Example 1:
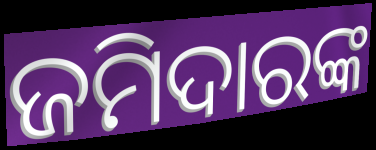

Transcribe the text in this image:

ଜମିଦାରଙ୍କ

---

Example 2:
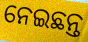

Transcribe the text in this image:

ନେଇଛନ୍ତ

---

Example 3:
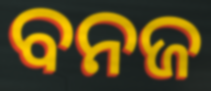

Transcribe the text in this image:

ବନଜ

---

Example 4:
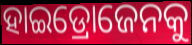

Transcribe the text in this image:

ହାଇଡ୍ରୋଜେନକୁ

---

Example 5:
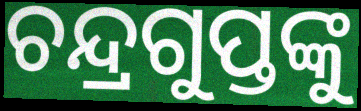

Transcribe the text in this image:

ଚନ୍ଦ୍ରଗୁପ୍ତଙ୍କୁ